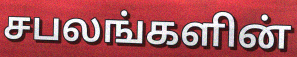
சபலங்களின்